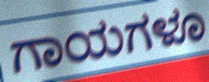
ಗಾಯಗಳೂ